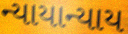
ન્યાયાન્યાય